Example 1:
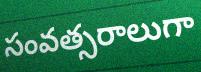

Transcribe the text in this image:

సంవత్సరాలుగా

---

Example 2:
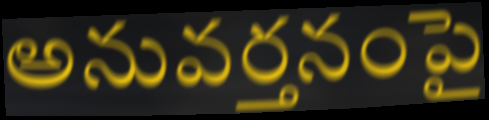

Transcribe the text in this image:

అనువర్తనంపై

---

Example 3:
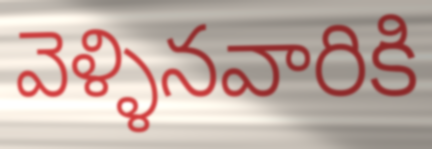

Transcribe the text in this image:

వెళ్ళినవారికి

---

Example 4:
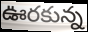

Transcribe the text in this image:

ఊరకున్న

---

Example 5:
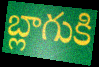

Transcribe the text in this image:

బ్లాగుకి